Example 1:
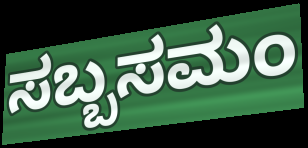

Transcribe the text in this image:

ಸಬ್ಬಸಮಂ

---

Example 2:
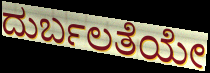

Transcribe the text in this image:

ದುರ್ಬಲತೆಯೇ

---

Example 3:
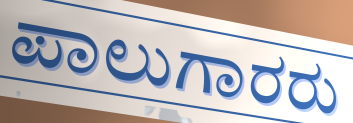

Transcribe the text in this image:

ಪಾಲುಗಾರರು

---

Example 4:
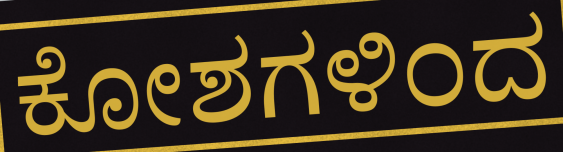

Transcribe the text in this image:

ಕೋಶಗಳಿಂದ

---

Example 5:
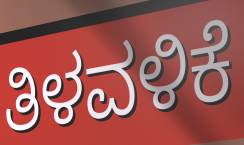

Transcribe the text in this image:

ತಿಳವಳಿಕೆ